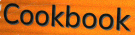
Cookbook